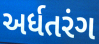
અર્ધતરંગ